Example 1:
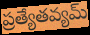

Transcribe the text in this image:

ప్రత్యేతవ్యమ్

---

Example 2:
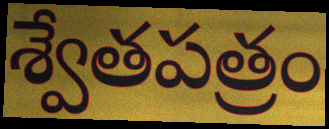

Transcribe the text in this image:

శ్వేతపత్రం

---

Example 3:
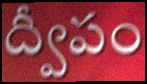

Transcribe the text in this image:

ద్వీపం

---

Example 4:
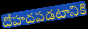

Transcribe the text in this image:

దోహదపడటానికి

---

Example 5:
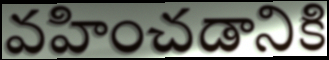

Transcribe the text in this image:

వహించడానికి